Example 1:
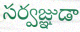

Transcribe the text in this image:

సర్వజ్ఞుడా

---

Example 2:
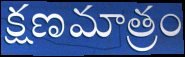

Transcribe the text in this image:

క్షణమాత్రం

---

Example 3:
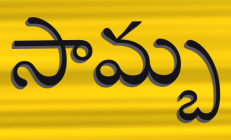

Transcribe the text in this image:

సామ్బ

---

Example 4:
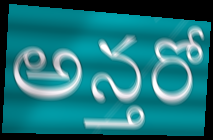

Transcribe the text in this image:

అన్తరో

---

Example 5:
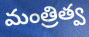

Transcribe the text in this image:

మంత్రిత్వ